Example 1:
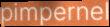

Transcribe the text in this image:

pimpernel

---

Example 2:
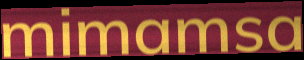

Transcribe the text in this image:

mimamsa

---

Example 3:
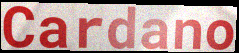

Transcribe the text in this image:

Cardano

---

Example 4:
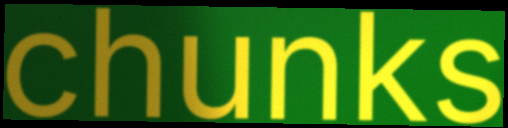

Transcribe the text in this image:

chunks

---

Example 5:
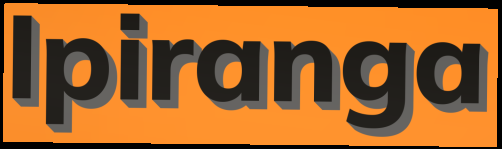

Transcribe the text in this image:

Ipiranga